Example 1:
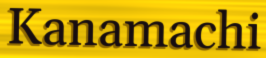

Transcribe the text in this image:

Kanamachi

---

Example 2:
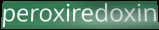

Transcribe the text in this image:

peroxiredoxin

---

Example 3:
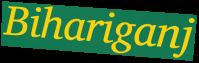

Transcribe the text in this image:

Bihariganj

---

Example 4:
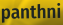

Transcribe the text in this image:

panthni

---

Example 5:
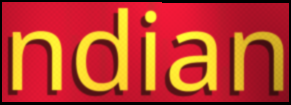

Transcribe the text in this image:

ndian